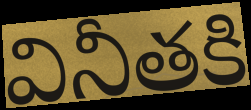
వినీతకి